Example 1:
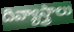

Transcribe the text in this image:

దివ్యాస్త్రాలు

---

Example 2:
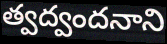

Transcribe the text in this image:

త్వద్వందనాని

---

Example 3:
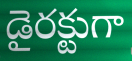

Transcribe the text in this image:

డైరక్టుగా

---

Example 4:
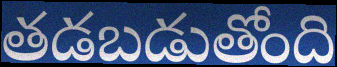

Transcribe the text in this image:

తడబడుతోంది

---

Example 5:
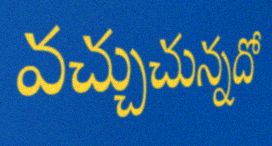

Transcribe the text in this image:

వచ్చుచున్నదో